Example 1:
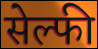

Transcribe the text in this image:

सेल्फी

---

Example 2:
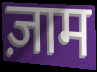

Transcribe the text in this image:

ज़ाम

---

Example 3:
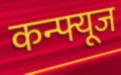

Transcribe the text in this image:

कन्फ्यूज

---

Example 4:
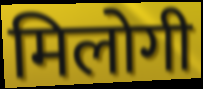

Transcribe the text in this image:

मिलोगी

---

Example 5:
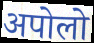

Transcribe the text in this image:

अपोलो